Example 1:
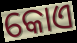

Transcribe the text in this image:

କୋଏ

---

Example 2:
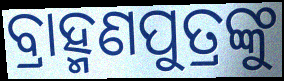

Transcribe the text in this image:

ବ୍ରାହ୍ମଣପୁତ୍ରଙ୍କୁ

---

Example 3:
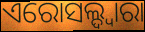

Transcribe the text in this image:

ଏରୋସଲ୍ଦ୍ୱାରା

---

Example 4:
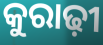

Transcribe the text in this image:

କୁରାଢ଼ୀ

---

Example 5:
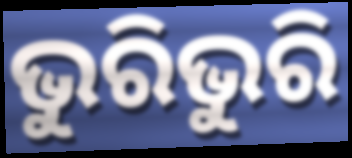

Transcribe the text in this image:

ଭୁରିଭୁରି